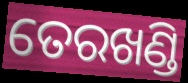
ତେରଖଣ୍ଡି